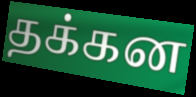
தக்கன